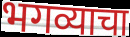
भगव्याचा